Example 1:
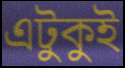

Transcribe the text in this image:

এটুকুই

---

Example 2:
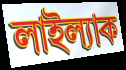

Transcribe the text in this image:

লাইল্যাক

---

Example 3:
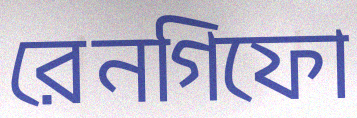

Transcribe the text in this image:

রেনগিফো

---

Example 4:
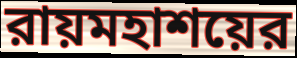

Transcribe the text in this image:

রায়মহাশয়ের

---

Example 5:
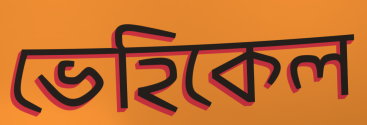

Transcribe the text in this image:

ভেহিকেল